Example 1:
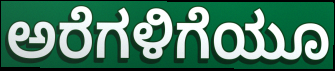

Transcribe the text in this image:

ಅರೆಗಳಿಗೆಯೂ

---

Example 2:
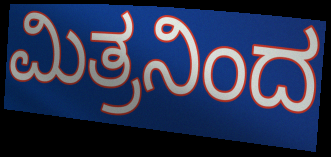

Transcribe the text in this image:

ಮಿತ್ರನಿಂದ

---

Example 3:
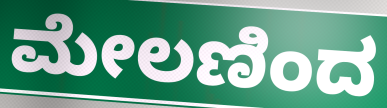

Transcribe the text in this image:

ಮೇಲಣಿಂದ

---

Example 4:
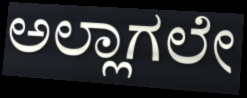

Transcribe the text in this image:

ಅಲ್ಲಾಗಲೇ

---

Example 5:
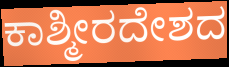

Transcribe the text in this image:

ಕಾಶ್ಮೀರದೇಶದ